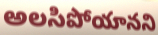
అలసిపోయానని